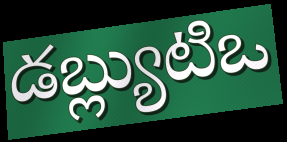
డబ్ల్యుటిఒ